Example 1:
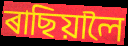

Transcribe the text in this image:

ৰাছিয়ালৈ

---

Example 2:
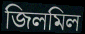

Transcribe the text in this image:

জিলমিল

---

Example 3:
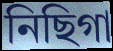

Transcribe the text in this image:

নিছিগা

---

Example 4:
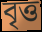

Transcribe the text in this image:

বৃত্ত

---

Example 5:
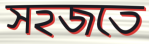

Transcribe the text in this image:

সহজতে